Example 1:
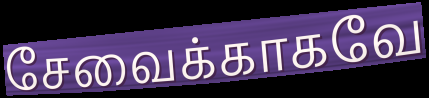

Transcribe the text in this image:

சேவைக்காகவே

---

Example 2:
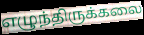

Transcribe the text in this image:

எழுந்திருக்கலை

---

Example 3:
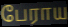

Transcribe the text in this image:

பேராய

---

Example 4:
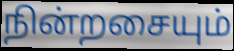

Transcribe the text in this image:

நின்றசையும்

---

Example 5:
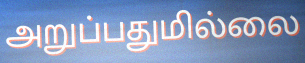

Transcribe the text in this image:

அறுப்பதுமில்லை